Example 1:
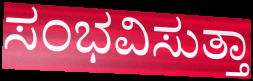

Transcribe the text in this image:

ಸಂಭವಿಸುತ್ತಾ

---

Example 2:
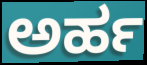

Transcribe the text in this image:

ಅರ್ಹ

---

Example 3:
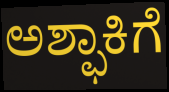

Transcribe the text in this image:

ಅಶ್ಫಾಕಿಗೆ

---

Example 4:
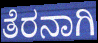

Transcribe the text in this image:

ತೆರನಾಗಿ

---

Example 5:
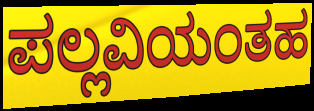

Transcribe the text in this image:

ಪಲ್ಲವಿಯಂತಹ